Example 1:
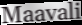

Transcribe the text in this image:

Maavali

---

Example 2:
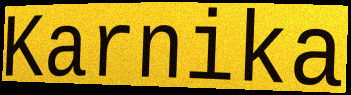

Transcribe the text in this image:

Karnika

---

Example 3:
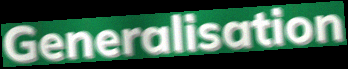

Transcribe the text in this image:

Generalisation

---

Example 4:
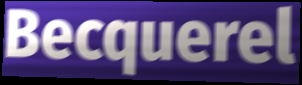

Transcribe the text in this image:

Becquerel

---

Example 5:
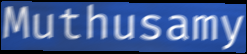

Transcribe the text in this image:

Muthusamy